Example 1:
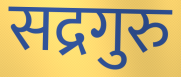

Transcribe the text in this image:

सद्रगुरु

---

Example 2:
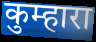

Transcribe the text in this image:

कुम्हारा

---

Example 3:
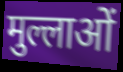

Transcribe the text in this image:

मुल्लाओं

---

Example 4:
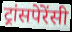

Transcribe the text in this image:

ट्रांसपेरेंसी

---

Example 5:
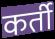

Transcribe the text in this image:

कर्ती